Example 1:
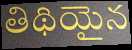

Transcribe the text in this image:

తిథియైన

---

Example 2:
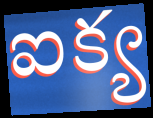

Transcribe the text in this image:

ఐక్య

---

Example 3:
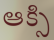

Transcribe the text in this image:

ఆక్సి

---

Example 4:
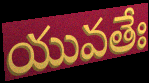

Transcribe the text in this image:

యువతేః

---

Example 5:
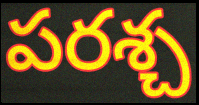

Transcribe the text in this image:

పరశ్చ